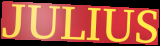
JULIUS